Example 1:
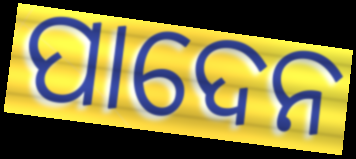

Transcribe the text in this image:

ପାଦେନ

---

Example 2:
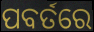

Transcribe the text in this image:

ପବର୍ତରେ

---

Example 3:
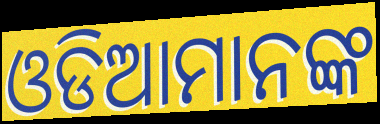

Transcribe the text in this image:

ଓଡିଆମାନଙ୍କ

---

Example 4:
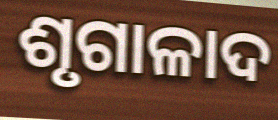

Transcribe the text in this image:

ଶୃଗାଳାଦ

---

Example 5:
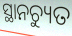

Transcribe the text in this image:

ସ୍ଥାନଚ୍ୟୁତ